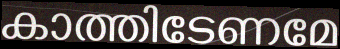
കാത്തിടേണമേ